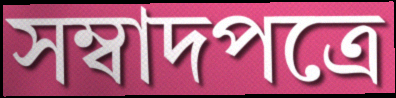
সম্বাদপত্রে